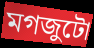
মগজুটো